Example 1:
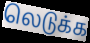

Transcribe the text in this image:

லெடுக்க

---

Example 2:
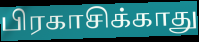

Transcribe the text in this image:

பிரகாசிக்காது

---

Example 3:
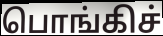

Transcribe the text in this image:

பொங்கிச்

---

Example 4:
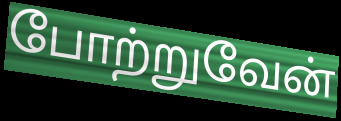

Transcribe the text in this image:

போற்றுவேன்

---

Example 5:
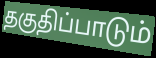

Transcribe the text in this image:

தகுதிப்பாடும்